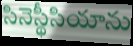
సినెస్థీసియాను